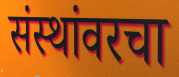
संस्थांवरचा